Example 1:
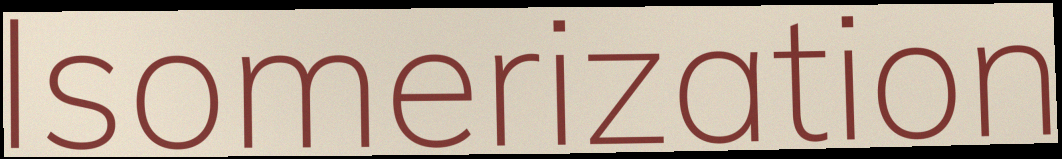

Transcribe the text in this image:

Isomerization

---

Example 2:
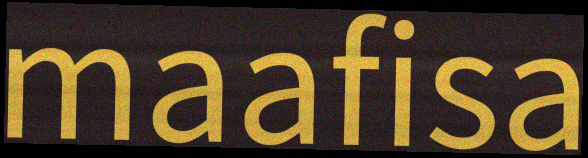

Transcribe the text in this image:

maafisa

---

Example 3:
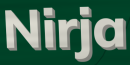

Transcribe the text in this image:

Nirja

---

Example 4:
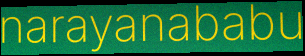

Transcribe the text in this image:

narayanababu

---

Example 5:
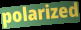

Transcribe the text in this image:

polarized